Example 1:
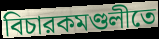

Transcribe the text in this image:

বিচারকমণ্ডলীতে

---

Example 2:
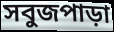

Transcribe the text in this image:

সবুজপাড়া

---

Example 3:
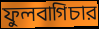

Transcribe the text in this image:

ফুলবাগিচার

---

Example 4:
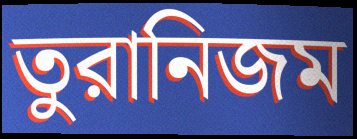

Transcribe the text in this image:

তুরানিজম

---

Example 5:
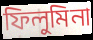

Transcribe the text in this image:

ফিলুমিনা